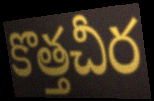
కొత్తచీర